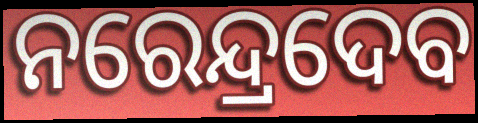
ନରେନ୍ଦ୍ରଦେବ